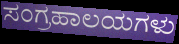
ಸಂಗ್ರಹಾಲಯಗಳು